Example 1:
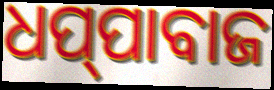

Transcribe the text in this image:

ଧପ୍‌ପାବାଜ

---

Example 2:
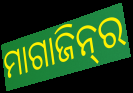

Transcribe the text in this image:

ମାଗାଜିନ୍‍ର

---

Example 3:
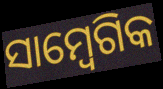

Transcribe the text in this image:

ସାମ୍ବେଗିକ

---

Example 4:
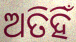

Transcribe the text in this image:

ଅତିହିଁ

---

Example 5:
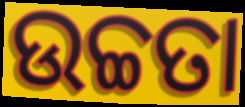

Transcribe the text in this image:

ଉଚ୍ଚତା